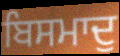
ਬਿਸਮਾਦੁ